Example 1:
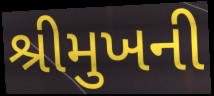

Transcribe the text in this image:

શ્રીમુખની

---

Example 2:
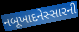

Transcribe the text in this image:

નબૂખાદનેસ્સારની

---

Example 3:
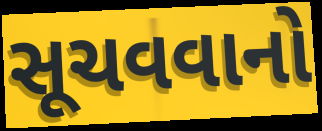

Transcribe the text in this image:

સૂચવવાનો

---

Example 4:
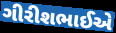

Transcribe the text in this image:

ગીરીશભાઈએ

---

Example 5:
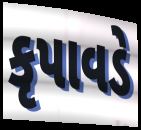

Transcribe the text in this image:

કૃપાવડે